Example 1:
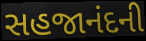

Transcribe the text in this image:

સહજાનંદની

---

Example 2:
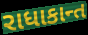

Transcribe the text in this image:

રાધાકાન્ત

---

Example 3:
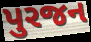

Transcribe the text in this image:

પુરજન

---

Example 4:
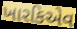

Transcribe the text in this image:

ખારકિએવ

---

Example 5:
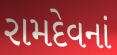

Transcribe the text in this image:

રામદેવનાં